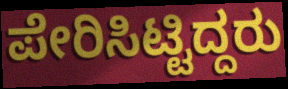
ಪೇರಿಸಿಟ್ಟಿದ್ದರು